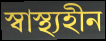
স্বাস্থ্যহীন